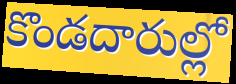
కొండదారుల్లో